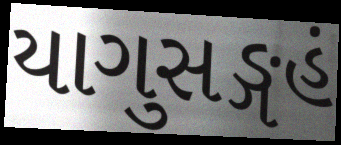
યાગુસઙ્ગહં